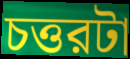
চত্তরটা